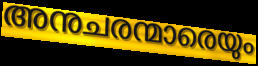
അനുചരന്മാരെയും